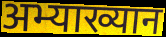
अभ्याख्यान